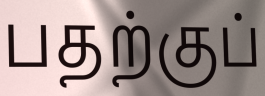
பதற்குப்